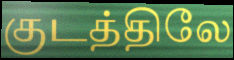
குடத்திலே